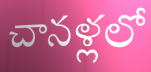
చానళ్లలో